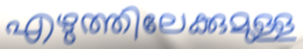
എഴുത്തിലേക്കുമുള്ള